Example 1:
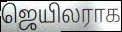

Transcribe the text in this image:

ஜெயிலராக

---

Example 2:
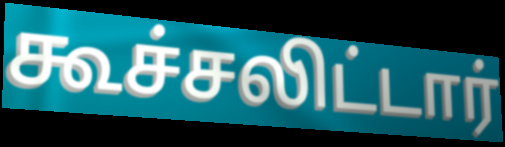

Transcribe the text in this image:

கூச்சலிட்டார்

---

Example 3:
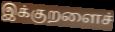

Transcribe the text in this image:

இக்குறளைச்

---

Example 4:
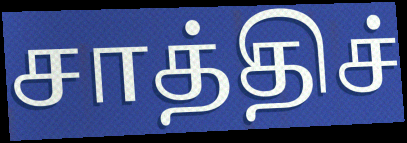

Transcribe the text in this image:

சாத்திச்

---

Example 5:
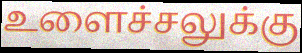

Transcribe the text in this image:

உளைச்சலுக்கு